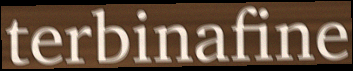
terbinafine